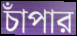
চাঁপার